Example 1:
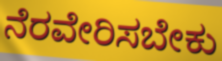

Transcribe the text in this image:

ನೆರವೇರಿಸಬೇಕು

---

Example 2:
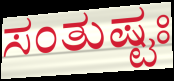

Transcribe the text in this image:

ಸಂತುಷ್ಟಃ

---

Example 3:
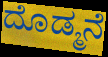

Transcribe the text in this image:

ದೊಡ್ಮನೆ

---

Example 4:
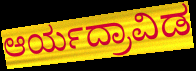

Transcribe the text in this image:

ಆರ್ಯದ್ರಾವಿಡ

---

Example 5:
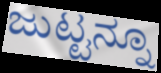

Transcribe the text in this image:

ಜುಟ್ಟನ್ನೂ